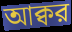
আক্বর